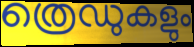
ത്രെഡുകളും